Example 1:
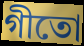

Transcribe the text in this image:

গীতো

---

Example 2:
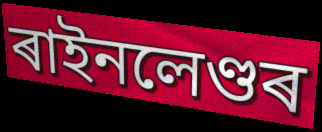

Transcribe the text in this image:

ৰাইনলেণ্ডৰ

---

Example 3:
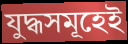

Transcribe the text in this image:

যুদ্ধসমূহেই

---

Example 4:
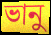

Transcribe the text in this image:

ভানু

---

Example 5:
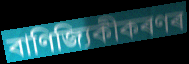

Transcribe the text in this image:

বাণিজ্যিকীকৰণৰ